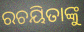
ରଚୟିତାଙ୍କୁ